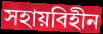
সহায়বিহীন